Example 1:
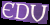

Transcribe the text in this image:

EDU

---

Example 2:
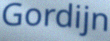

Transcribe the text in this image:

Gordijn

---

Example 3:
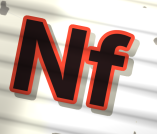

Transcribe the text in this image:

Nf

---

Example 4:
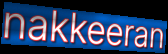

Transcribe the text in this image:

nakkeeran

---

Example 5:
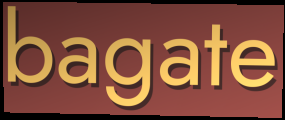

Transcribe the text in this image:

bagate